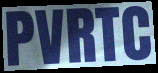
PVRTC